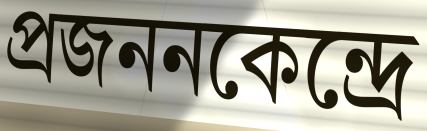
প্রজননকেন্দ্রে